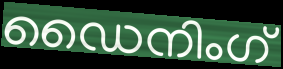
ഡൈനിംഗ്